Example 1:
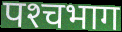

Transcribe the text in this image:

पश्चभाग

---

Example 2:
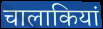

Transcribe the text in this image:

चालाकियां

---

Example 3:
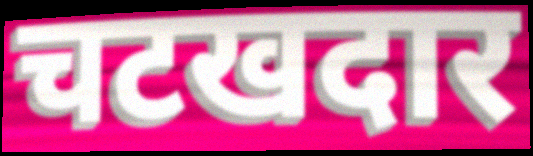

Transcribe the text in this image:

चटखदार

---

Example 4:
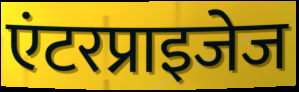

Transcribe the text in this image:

एंटरप्राइजेज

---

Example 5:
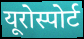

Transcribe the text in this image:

यूरोस्पोर्ट